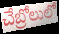
చేబ్రోలులో